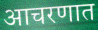
आचरणात